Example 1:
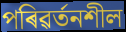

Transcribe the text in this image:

পৰিৱৰ্তনশীল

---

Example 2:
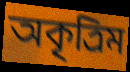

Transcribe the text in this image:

অকৃত্ৰিম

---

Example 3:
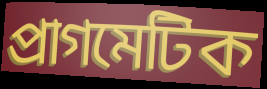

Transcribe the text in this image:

প্ৰাগমেটিক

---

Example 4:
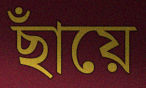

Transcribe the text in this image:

ছাঁয়ে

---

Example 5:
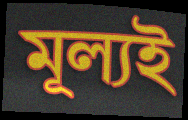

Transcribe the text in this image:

মূল্যই